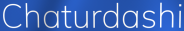
Chaturdashi